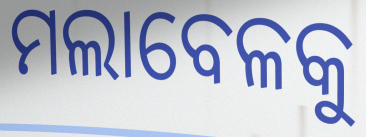
ମଲାବେଳକୁ